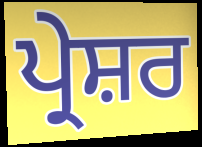
ਪ੍ਰੇਸ਼ਰ